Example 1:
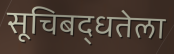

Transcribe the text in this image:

सूचिबद्धतेला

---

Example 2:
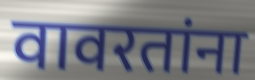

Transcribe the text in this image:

वावरतांना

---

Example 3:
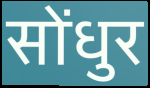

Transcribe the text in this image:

सोंधुर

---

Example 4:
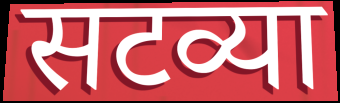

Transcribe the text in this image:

सटव्या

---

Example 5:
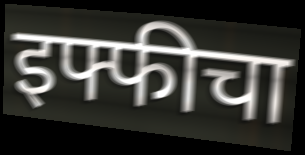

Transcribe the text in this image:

इफ्फीचा